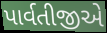
પાર્વતીજીએ